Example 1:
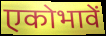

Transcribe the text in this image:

एकोभावें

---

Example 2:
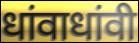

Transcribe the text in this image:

धांवाधांवी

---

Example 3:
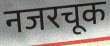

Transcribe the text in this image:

नजरचूक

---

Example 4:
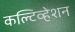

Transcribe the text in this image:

कल्टिव्हेशन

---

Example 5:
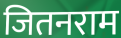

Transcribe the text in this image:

जितनराम